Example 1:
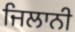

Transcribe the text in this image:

ਜਿਲਾਨੀ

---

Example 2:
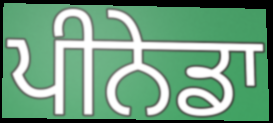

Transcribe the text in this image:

ਪੀਨੇਡਾ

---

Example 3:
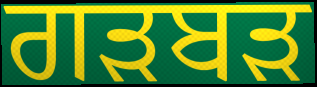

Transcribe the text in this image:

ਗੜਬੜ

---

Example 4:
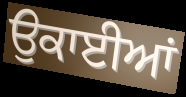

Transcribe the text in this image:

ਉਕਾਈਆਂ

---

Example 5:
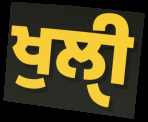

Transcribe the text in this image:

ਖੁਲੀੑ